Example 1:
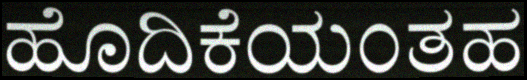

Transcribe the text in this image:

ಹೊದಿಕೆಯಂತಹ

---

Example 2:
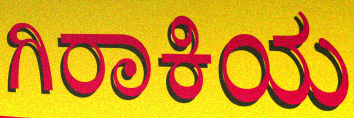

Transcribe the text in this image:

ಗಿರಾಕಿಯ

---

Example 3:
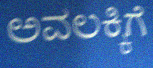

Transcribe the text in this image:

ಅವಲಕ್ಕಿಗೆ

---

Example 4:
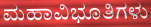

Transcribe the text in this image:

ಮಹಾವಿಭೂತಿಗಳು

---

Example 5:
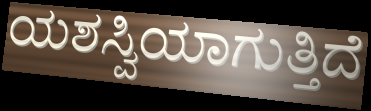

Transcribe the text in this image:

ಯಶಸ್ವಿಯಾಗುತ್ತಿದೆ